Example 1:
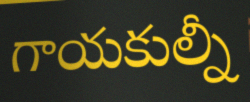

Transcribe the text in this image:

గాయకుల్నీ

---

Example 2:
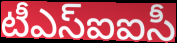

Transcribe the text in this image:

టీఎస్ఐఐసీ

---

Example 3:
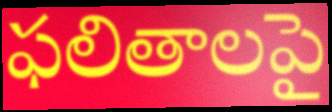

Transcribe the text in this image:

ఫలితాలపై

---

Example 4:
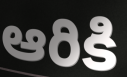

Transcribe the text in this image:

ఆరికి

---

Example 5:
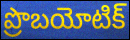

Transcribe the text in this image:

ప్రొబయోటిక్